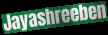
Jayashreeben